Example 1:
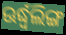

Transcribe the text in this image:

ଊର୍ଦ୍ଧ୍ୱଲିଙ୍ଗ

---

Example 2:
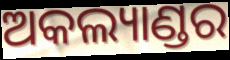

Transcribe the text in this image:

ଅକଲ୍ୟାଣ୍ଡର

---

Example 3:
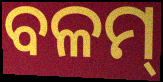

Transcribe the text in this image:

ବଳମ୍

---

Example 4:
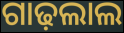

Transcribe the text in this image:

ଗାଢ଼ଲାଲ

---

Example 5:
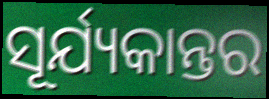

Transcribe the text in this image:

ସୂର୍ଯ୍ୟକାନ୍ତର